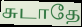
சுடாதே